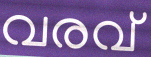
വരവ്